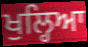
ਖੁਲ੍ਹਿਆ